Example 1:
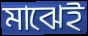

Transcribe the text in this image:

মাঝেই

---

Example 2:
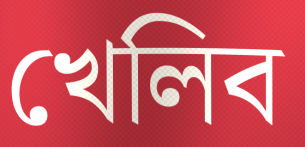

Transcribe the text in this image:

খেলিব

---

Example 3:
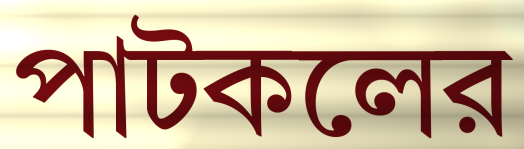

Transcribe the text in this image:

পাটকলের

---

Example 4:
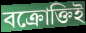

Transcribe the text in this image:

বক্রোক্তিই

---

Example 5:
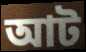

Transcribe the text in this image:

আট